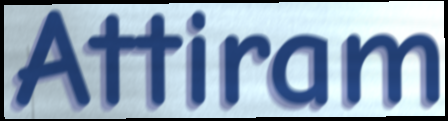
Attiram